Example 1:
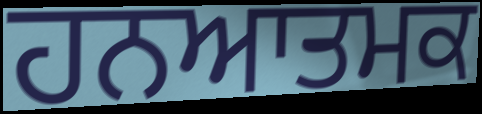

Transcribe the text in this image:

ਹਨਆਤਮਕ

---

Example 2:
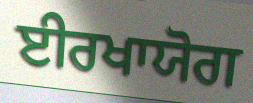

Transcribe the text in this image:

ਈਰਖਾਯੋਗ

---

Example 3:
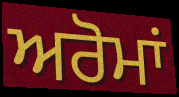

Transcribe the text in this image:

ਅਰੋਮਾਂ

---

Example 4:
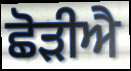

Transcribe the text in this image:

ਛੋੜੀਐ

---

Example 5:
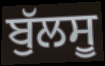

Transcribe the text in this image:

ਬੁੱਲਸੂ